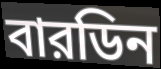
বারডিন